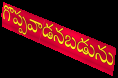
గొప్పవాడనబడును